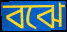
বঝে